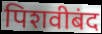
पिशवीबंद